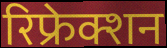
रिफ्रेक्शन